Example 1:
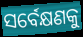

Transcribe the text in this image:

ସର୍ବେକ୍ଷଣକୁ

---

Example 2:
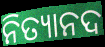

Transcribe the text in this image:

ନିତ୍ୟାନଦ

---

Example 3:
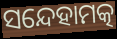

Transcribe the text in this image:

ସନ୍ଦେହାମତ୍କ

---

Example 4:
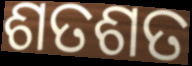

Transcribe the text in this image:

ଶତଶତ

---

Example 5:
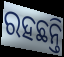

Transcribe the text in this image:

ରହଛନ୍ତି